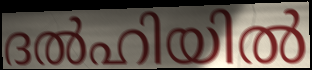
ദൽഹിയിൽ